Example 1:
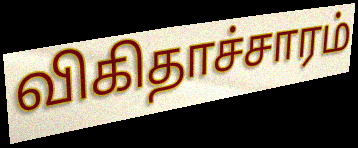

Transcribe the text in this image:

விகிதாச்சாரம்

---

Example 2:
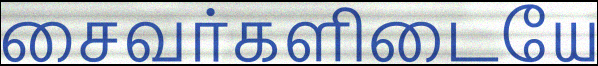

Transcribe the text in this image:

சைவர்களிடையே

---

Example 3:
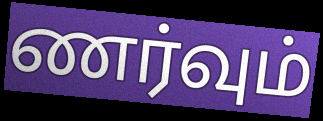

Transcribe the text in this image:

ணர்வும்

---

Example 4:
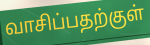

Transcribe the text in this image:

வாசிப்பதற்குள்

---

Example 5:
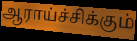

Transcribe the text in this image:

ஆராய்ச்சிக்கும்